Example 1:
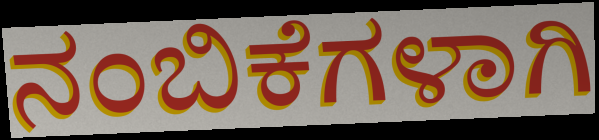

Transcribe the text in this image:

ನಂಬಿಕೆಗಳಾಗಿ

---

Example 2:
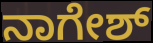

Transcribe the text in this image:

ನಾಗೇಶ್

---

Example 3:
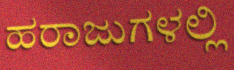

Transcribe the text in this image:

ಹರಾಜುಗಳಲ್ಲಿ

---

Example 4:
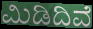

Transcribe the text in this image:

ಮಿಡಿದಿವೆ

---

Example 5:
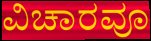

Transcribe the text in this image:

ವಿಚಾರವೂ